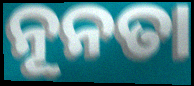
ନୂନତା